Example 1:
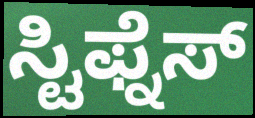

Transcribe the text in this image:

ಸ್ಟಿಫ್ನೆಸ್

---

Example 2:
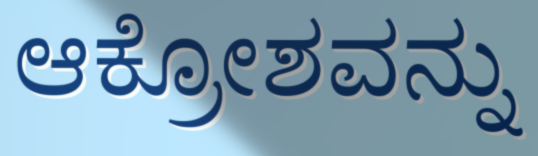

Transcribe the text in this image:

ಆಕ್ರೋಶವನ್ನು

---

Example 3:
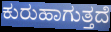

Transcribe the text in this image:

ಕುರುಹಾಗುತ್ತದೆ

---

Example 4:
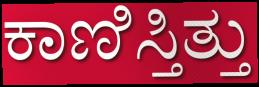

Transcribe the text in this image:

ಕಾಣಿಸ್ತಿತ್ತು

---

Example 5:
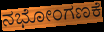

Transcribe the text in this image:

ನಭೋಂಗಣಕೆ